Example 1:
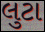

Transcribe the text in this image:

લુટા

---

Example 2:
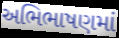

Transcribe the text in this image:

અભિભાષણમાં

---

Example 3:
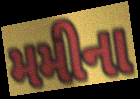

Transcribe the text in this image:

મમીના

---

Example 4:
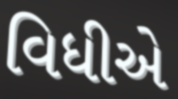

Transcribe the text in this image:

વિધીએ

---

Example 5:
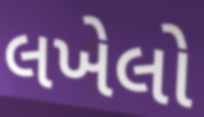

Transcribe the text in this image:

લખેલો